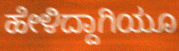
ಹೇಳಿದ್ದಾಗಿಯೂ